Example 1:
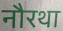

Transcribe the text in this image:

नौरथा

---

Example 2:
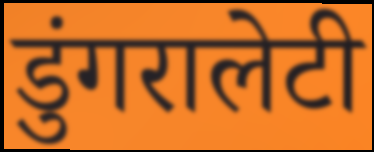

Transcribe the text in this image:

डुंगरालेटी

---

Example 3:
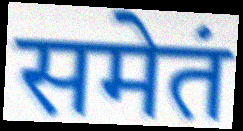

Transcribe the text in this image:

समेतं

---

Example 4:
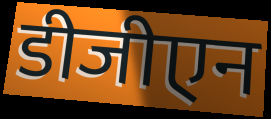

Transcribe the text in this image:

डीजीएन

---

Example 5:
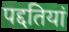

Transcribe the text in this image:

पद्दतियां